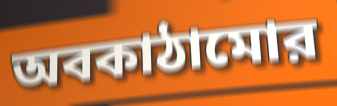
অবকাঠামোর